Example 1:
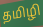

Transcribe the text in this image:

தமிழி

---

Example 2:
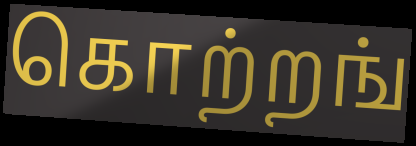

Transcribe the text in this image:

கொற்றங்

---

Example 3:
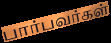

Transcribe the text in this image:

பார்பவர்கள்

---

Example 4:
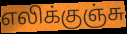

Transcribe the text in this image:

எலிக்குஞ்சு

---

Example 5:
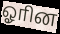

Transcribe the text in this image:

ஓரின